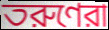
তরুণেরা